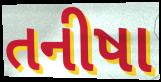
તનીષા